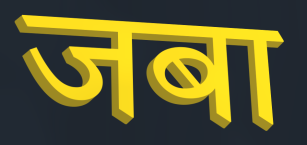
जबा